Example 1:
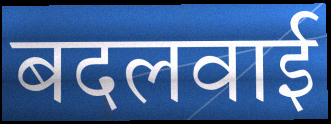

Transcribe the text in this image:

बदलवाई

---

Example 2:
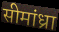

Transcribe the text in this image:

सीमांध्रा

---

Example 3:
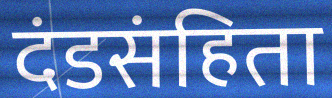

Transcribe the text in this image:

दंडसंहिता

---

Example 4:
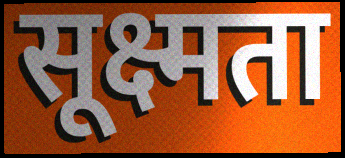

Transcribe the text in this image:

सूक्ष्मता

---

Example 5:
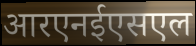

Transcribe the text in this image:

आरएनईएसएल